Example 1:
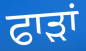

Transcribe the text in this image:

ਫਾੜਾਂ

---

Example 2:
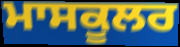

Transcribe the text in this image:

ਮਾਸਕੂਲਰ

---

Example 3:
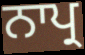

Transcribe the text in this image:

ਨਾਪ੍ਰ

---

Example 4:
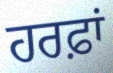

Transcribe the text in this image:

ਹਰਫ਼ਾਂ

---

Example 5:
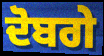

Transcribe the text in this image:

ਦੋਬਗੇ